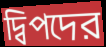
দ্বিপদের